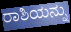
ರಾಶಿಯನ್ನು